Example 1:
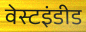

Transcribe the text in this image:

वेस्टइंडीड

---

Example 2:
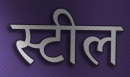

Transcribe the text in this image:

स्टील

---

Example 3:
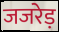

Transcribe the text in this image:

जजरेड़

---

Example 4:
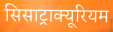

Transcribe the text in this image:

सिसाट्राक्यूरियम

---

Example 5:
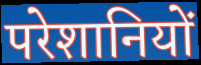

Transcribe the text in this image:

परेशानियों